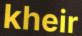
kheir